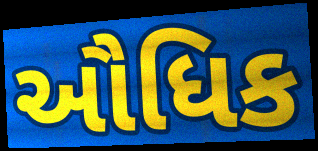
ઔધિક